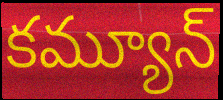
కమ్యూన్